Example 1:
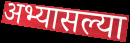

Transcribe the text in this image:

अभ्यासल्या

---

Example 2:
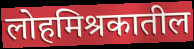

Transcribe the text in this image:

लोहमिश्रकातील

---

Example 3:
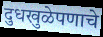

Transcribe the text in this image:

दुधखुळेपणाचे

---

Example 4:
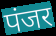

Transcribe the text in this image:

पंजर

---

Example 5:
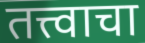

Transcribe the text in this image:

तत्त्वाचा